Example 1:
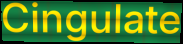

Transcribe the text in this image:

Cingulate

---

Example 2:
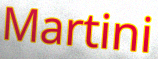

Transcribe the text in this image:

Martini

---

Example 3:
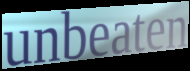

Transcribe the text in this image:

unbeaten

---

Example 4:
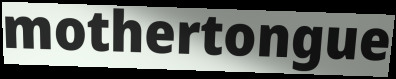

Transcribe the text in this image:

mothertongue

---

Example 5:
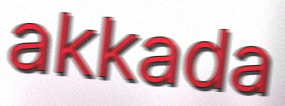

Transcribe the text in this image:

akkada